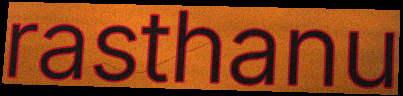
rasthanu